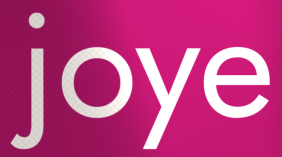
joye